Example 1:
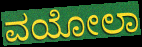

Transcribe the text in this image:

ವಯೋಲಾ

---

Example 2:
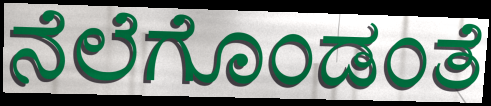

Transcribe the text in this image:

ನೆಲೆಗೊಂಡಂತೆ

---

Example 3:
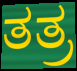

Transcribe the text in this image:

ತತ್ರ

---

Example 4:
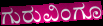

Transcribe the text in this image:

ಗುರುವಿಂಗೂ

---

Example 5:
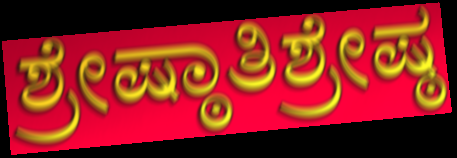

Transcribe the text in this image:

ಶ್ರೇಷ್ಠಾತಿಶ್ರೇಷ್ಠ